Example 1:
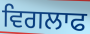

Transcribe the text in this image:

ਵਿਗਲਾਫ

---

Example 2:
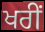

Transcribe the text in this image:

ਖਰੀਂ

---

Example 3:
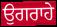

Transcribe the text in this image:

ਉਗਰਾਹੇ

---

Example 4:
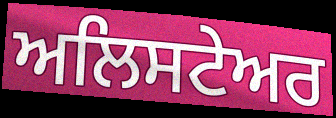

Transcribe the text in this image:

ਅਲਿਸਟੇਅਰ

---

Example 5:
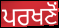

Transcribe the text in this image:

ਪਰਖਣੋਂ